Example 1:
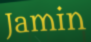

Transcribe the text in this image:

Jamin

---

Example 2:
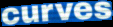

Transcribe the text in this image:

curves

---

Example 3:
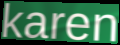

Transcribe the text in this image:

karen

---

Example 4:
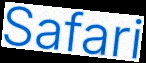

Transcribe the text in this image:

Safari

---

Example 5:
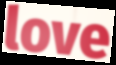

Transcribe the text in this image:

love